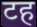
टह